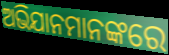
ଅଭିଯାନମାନଙ୍କରେ